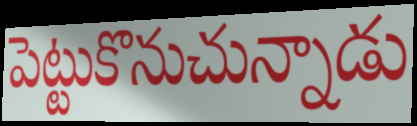
పెట్టుకొనుచున్నాడు